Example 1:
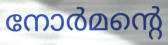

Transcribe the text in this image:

നോർമന്റെ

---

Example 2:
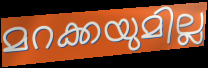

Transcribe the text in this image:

മറക്കയുമില്ല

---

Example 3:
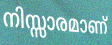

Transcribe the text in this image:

നിസ്സാരമാണ്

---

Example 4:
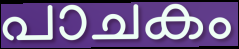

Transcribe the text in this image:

പാചകം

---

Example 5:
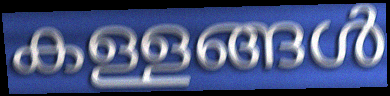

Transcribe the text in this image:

കള്ളങ്ങൾ